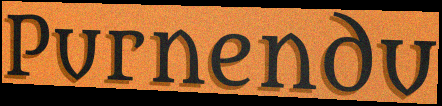
Purnendu